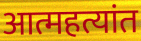
आत्महत्यांत